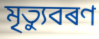
মৃত্যুবৰণ